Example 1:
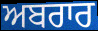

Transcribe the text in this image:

ਅਬਰਾਰ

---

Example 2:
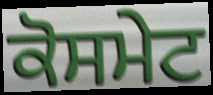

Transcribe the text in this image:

ਕੋਸਮੇਟ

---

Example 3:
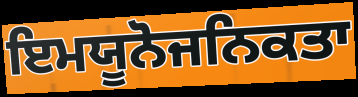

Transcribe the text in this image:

ਇਮਯੂਨੋਜਨਿਕਤਾ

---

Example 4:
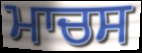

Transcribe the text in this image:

ਮਾਚਸ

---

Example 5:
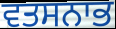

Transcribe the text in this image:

ਵਤਸਨਾਭ